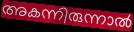
അകന്നിരുന്നാൽ